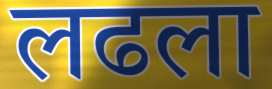
लढला